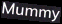
Mummy